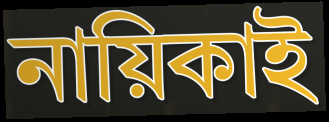
নায়িকাই